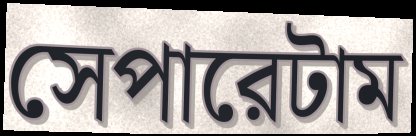
সেপারেটাম